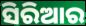
ସିରିଆର